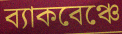
ব্যাকবেঞ্চে